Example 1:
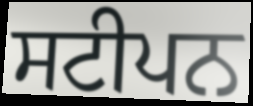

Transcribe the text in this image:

ਸਟੀਪਨ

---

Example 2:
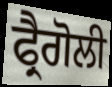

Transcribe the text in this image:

ਫ੍ਰੈਗੋਲੀ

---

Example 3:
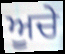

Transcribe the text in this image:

ਅੂਚੇ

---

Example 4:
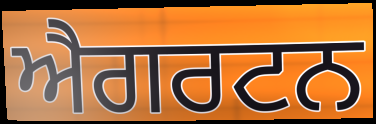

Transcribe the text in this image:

ਐਗਰਟਨ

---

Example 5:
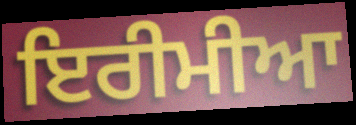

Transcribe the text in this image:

ਇਰੀਮੀਆ